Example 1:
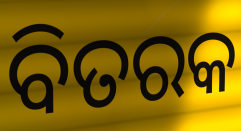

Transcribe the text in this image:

ବିତରକ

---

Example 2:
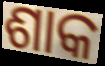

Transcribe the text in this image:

ଶାକ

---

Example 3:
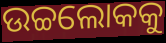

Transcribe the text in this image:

ଉଚ୍ଚଲୋକକୁ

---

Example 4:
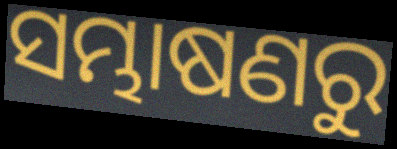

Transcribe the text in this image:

ସମ୍ଭାଷଣରୁ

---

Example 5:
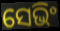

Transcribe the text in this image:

ସେଭିଂ